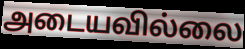
அடையவில்லை